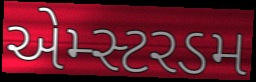
એમ્સ્ટરડમ